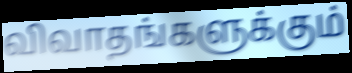
விவாதங்களுக்கும்